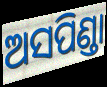
ଅସପିଣ୍ଡା